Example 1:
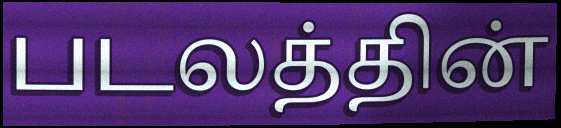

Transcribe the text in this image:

படலத்தின்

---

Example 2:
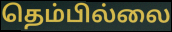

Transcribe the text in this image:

தெம்பில்லை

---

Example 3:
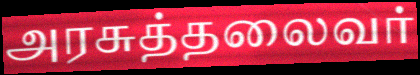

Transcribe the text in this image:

அரசுத்தலைவர்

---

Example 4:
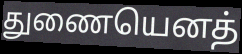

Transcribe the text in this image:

துணையெனத்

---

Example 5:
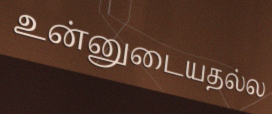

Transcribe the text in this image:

உன்னுடையதல்ல